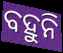
ବହୁନି